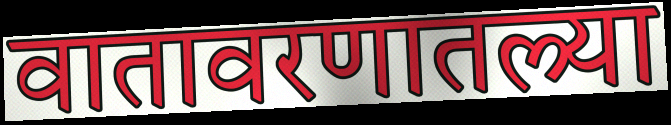
वातावरणातल्या